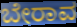
ಬೇರಾವ